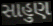
સાહુણ